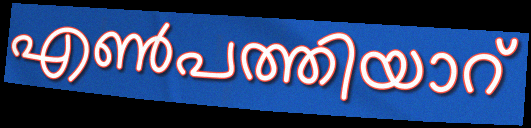
എൺപത്തിയാറ്